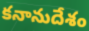
కనానుదేశం